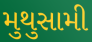
મુથુસામી